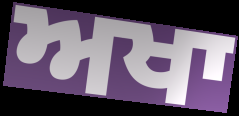
ਅਖਾ